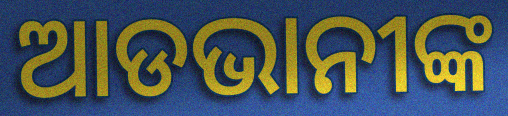
ଆଡଭାନୀଙ୍କ